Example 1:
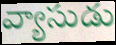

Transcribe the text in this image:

వ్యాసుడు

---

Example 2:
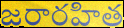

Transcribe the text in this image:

జరారహిత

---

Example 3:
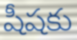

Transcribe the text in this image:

షీషకు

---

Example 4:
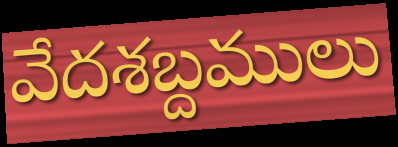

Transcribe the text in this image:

వేదశబ్దములు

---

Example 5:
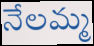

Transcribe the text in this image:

నేలమ్మ